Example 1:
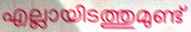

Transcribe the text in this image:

എല്ലായിടത്തുമുണ്ട്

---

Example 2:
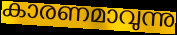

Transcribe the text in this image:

കാരണമാവുന്നു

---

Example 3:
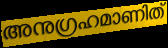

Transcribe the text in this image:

അനുഗ്രഹമാണിത്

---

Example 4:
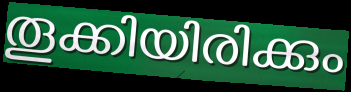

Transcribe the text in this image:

തൂക്കിയിരിക്കും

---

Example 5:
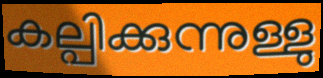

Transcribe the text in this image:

കല്പിക്കുന്നുള്ളു